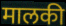
मालकी